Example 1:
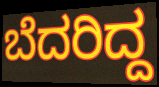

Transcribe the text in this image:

ಬೆದರಿದ್ದ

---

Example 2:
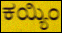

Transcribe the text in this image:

ಕಯ್ಯಿಂ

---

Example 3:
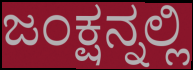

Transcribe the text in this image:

ಜಂಕ್ಷನ್ನಲ್ಲಿ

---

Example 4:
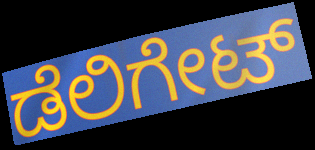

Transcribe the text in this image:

ಡೆಲಿಗೇಟ್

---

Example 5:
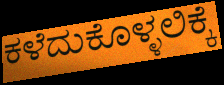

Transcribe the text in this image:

ಕಳೆದುಕೊಳ್ಳಲಿಕ್ಕೆ